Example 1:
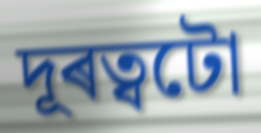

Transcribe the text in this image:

দূৰত্বটো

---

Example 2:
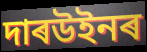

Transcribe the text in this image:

দাৰউইনৰ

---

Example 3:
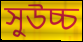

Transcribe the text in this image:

সুউচ্চ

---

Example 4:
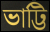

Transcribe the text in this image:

ভাট্টি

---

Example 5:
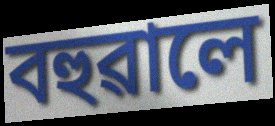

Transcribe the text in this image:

বহুৱালে